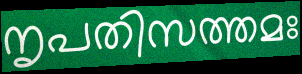
നൃപതിസത്തമഃ